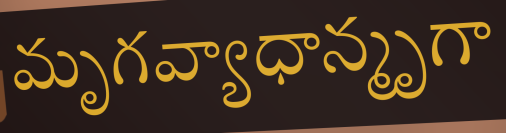
మృగవ్యాధాన్మృగా